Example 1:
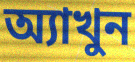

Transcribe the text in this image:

অ্যাখুন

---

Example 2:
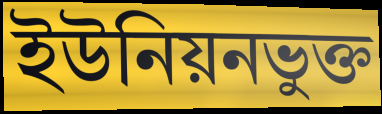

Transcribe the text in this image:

ইউনিয়নভুক্ত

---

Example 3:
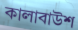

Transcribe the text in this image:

কালাবাউশ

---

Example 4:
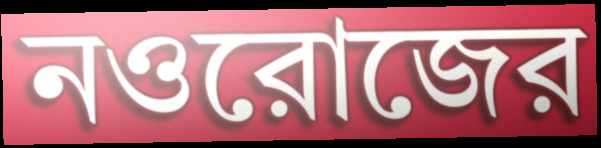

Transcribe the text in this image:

নওরোজের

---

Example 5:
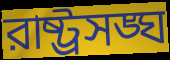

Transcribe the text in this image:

রাষ্ট্রসঙ্ঘ